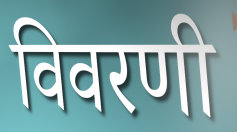
विवरणी